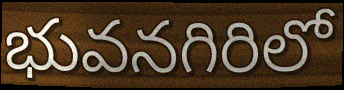
భువనగిరిలో